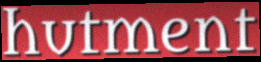
hutment